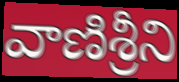
వాణిశ్రీని